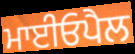
ਮਾਈਓਪੈਲ